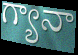
గ్యానా